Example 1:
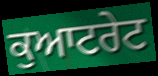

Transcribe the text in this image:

ਕੁਆਟਰੇਟ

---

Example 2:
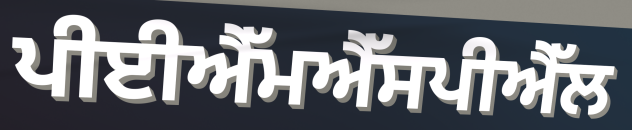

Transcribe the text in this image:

ਪੀਈਐੱਮਐੱਸਪੀਐੱਲ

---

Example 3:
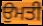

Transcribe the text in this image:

ਉਮਤੀ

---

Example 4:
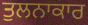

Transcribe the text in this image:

ਤੁਲਨਾਕਾਰ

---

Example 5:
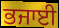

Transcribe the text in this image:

ਭਜਾਈ